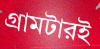
গ্রামটারই